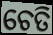
ଚେତି